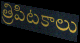
త్రిపిటకాలు